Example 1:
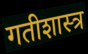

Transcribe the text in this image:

गतीशास्त्र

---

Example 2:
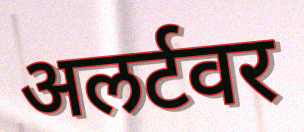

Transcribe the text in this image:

अलर्टवर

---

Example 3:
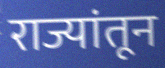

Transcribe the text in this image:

राज्यांतून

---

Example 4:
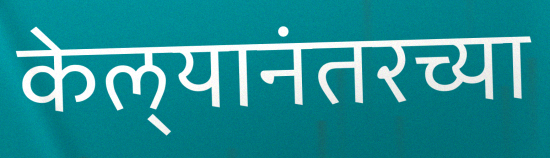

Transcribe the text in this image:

केल्यानंतरच्या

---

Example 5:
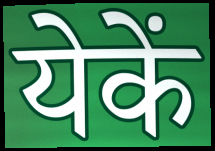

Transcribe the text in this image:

येकें